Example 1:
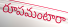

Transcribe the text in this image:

రూపమంటారా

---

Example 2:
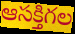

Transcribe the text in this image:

ఆసక్తిగల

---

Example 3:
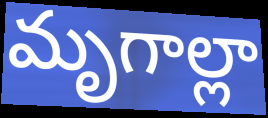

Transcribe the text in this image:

మృగాల్లా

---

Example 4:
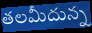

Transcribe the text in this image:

తలమీదున్న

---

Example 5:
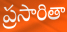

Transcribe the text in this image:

ప్రసారితా